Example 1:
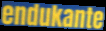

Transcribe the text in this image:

endukante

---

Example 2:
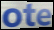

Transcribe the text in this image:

ote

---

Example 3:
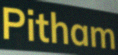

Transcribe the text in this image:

Pitham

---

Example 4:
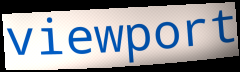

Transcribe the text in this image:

viewport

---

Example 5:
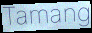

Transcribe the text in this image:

Tamang